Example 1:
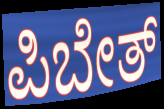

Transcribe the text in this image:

ಪಿಬೇತ್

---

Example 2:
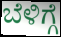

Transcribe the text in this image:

ಬೆಳಿಗ್ಗೆ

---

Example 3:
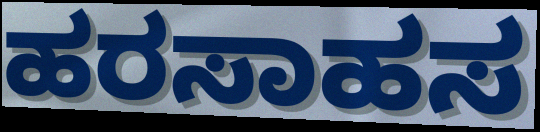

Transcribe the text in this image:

ಹರಸಾಹಸ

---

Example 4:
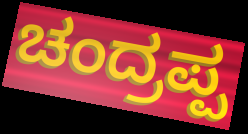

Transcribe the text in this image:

ಚಂದ್ರಪ್ಪ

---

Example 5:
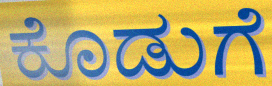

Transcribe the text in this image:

ಕೊಡುಗೆ